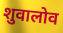
शुवालोव